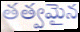
తత్వమైన